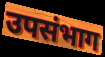
उपसंभाग